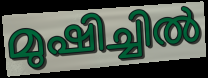
മുഷിച്ചിൽ